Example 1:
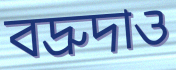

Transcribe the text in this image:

বদ্রুদাও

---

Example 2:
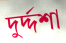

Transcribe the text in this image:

দুর্দ্দশা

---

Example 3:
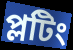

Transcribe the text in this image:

প্লটিং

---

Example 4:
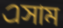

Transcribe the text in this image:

এসাম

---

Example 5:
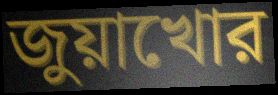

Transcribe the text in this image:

জুয়াখোর